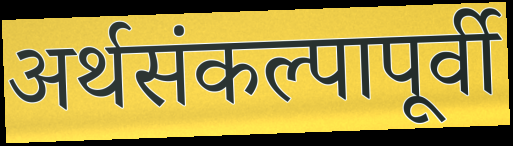
अर्थसंकल्पापूर्वी